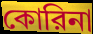
কোরিনা